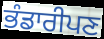
ਭੰਡਾਰੀਪਣ